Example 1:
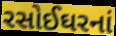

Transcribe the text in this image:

રસોઈઘરનાં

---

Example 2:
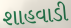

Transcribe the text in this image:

શાહવાડી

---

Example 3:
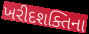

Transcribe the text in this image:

ખરીદશક્તિના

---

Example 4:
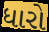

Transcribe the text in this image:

ધારો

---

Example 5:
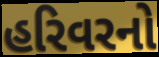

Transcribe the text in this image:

હરિવરનો